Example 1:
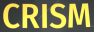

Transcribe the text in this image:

CRISM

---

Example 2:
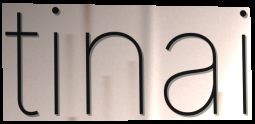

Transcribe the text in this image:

tinai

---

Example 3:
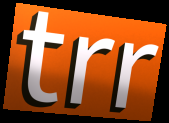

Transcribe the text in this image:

trr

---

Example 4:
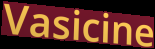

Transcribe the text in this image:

Vasicine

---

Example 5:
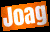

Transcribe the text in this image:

Joag